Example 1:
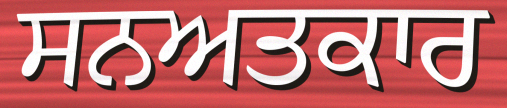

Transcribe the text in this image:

ਸਨਅਤਕਾਰ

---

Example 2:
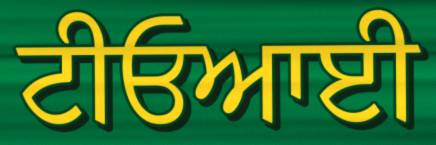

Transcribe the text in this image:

ਟੀਓਆਈ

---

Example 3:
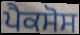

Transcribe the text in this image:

ਪੈਕਸੋਸ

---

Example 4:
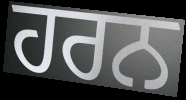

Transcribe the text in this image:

ਹਰਨ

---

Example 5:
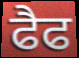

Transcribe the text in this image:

ਫੈਫ